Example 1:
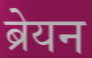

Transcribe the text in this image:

ब्रेयन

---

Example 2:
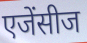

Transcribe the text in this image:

एजेंसीज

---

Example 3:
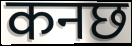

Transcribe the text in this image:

कनछ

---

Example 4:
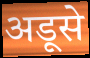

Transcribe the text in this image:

अडूसे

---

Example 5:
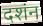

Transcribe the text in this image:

दशंन